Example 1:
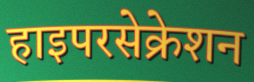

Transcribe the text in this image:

हाइपरसेक्रेशन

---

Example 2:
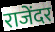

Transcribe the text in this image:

राजेंदर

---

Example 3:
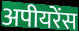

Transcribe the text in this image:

अपीयरेंस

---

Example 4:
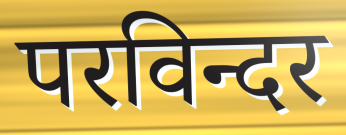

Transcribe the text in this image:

परविन्दर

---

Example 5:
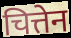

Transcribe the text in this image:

चित्तेन